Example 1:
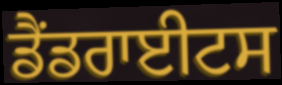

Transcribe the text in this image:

ਡੈਂਡਰਾਈਟਸ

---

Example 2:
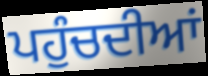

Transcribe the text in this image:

ਪਹੁੰਚਦੀਆਂ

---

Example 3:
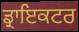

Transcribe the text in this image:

ਡ੍ਰਾਇਕਟਰ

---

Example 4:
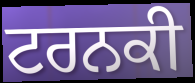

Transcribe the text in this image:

ਟਰਨਕੀ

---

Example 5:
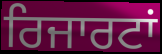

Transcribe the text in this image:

ਰਿਜਾਰਟਾਂ